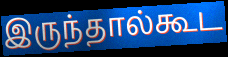
இருந்தால்கூட